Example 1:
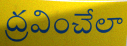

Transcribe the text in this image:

ద్రవించేలా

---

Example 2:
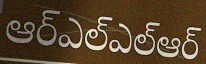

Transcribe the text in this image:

ఆర్ఎల్ఎల్ఆర్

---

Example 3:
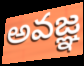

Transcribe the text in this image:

అవజ్ఞ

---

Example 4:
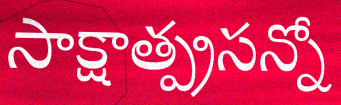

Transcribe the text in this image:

సాక్షాత్ప్రసన్నో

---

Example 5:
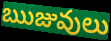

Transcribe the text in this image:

ఋజువులు